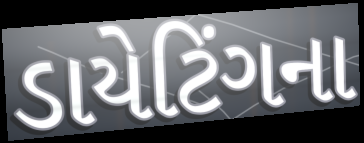
ડાયેટિંગના